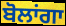
ਬੋਲਾਂਗਾ